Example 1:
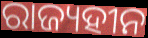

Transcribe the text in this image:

ରାଜ୍ୟହୀନ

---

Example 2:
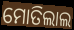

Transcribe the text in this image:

ମୋତିଲାଲ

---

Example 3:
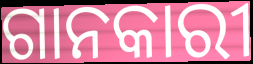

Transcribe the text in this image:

ଗାନକାରୀ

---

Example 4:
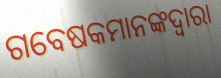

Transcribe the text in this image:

ଗବେଷକମାନଙ୍କଦ୍ୱାରା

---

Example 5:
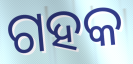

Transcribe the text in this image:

ଗହକ